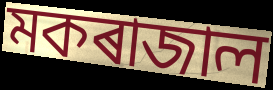
মকৰাজাল